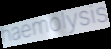
haemolysis